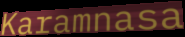
Karamnasa